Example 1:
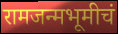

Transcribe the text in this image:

रामजन्मभूमीचं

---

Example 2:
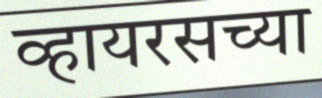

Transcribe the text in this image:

व्हायरसच्या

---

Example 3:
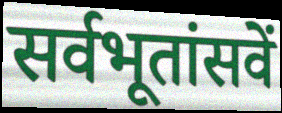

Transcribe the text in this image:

सर्वभूतांसवें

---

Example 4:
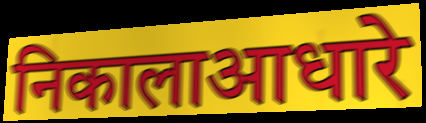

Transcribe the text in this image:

निकालाआधारे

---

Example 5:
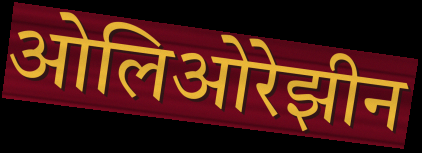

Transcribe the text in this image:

ओलिओरेझीन